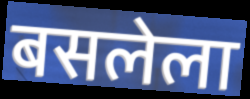
बसलेला